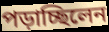
পড়াচ্ছিলেন